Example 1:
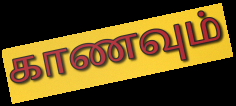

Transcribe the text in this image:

காணவும்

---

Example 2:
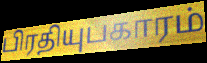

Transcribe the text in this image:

பிரதியுபகாரம்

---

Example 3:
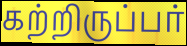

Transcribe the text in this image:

கற்றிருப்பர்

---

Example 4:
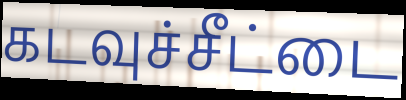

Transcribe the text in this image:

கடவுச்சீட்டை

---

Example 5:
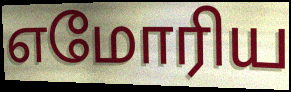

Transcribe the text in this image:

எமோரிய